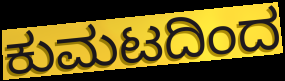
ಕುಮಟದಿಂದ